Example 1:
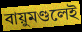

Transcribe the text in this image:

বায়ুমণ্ডলেই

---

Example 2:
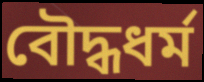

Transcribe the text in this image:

বৌদ্ধধর্ম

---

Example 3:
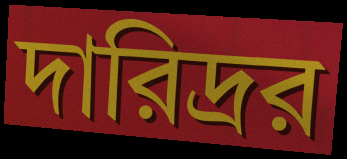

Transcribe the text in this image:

দারিদ্রর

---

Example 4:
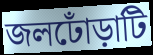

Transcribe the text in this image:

জলঢোঁড়াটি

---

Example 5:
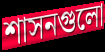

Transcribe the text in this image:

শাসনগুলো